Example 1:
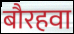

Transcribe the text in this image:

बौरहवा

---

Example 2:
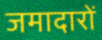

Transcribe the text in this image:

जमादारों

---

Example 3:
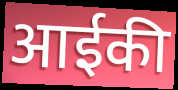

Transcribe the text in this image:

आईकी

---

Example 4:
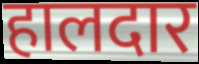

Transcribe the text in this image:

हालदार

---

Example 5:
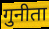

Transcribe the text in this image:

गुनीता